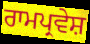
ਰਾਮਪ੍ਰਵੇਸ਼